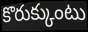
కొరుక్కుంటు